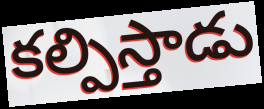
కల్పిస్తాడు